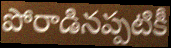
పోరాడినప్పటికీ